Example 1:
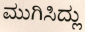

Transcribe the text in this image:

ಮುಗಿಸಿದ್ಲು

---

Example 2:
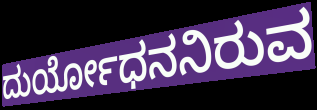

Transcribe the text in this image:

ದುರ್ಯೋಧನನಿರುವ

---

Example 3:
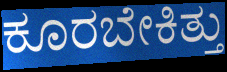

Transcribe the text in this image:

ಕೂರಬೇಕಿತ್ತು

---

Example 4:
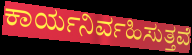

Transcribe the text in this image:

ಕಾರ್ಯನಿರ್ವಹಿಸುತ್ತವೆ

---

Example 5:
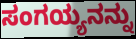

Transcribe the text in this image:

ಸಂಗಯ್ಯನನ್ನು